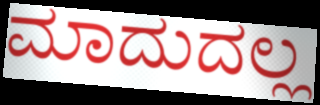
ಮಾದುದಲ್ಲ